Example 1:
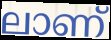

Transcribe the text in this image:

ലാണ്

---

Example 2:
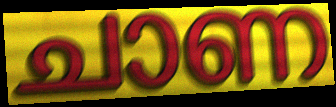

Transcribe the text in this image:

ചാണ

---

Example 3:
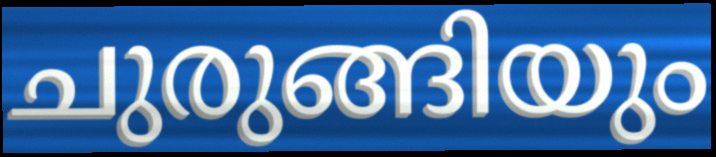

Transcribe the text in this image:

ചുരുങ്ങിയും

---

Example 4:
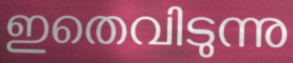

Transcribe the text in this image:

ഇതെവിടുന്നു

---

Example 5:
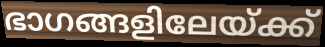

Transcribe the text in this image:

ഭാഗങ്ങളിലേയ്ക്ക്